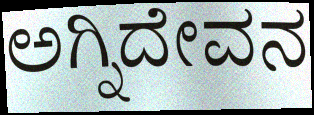
ಅಗ್ನಿದೇವನ